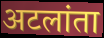
अटलांता